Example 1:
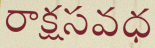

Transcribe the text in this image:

రాక్షసవధ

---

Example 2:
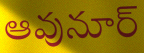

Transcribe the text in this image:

ఆవునూర్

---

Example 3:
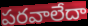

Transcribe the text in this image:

పరవాలేదా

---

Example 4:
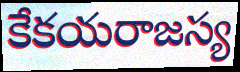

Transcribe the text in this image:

కేకయరాజస్య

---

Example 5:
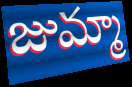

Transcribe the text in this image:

జుమ్మా